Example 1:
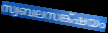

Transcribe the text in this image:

സ്വബലസങ്ക്ഷയം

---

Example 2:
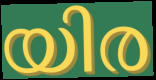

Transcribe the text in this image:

യിര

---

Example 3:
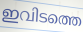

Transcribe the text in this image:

ഇവിടത്തെ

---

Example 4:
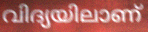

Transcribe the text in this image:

വിദ്യയിലാണ്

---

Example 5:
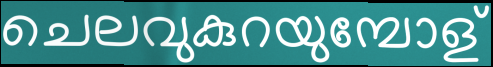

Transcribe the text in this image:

ചെലവുകുറയുമ്പോള്